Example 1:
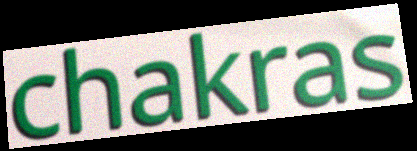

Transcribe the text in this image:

chakras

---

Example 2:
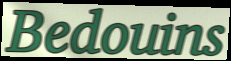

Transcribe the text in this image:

Bedouins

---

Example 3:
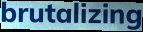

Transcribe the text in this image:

brutalizing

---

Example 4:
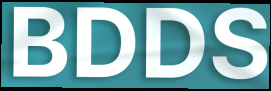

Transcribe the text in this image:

BDDS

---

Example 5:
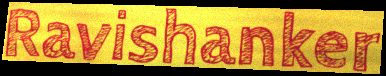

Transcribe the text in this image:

Ravishanker